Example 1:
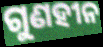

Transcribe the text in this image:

ଗୁଣହୀନ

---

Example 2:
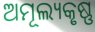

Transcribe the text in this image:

ଅମୂଲ୍ୟକୃଷ୍ଣ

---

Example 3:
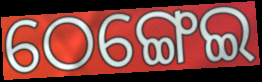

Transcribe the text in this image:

ଠେଙ୍ଗେଇ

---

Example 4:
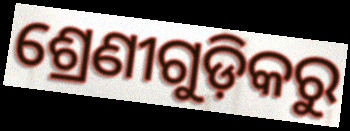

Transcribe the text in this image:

ଶ୍ରେଣୀଗୁଡ଼ିକରୁ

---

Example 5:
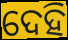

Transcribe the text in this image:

ଦେହି